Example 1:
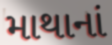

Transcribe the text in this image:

માથાનાં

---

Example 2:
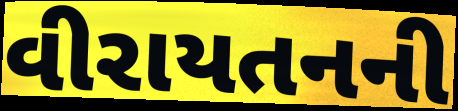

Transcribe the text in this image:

વીરાયતનની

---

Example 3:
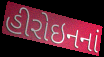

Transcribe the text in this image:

હીરોઇનનાં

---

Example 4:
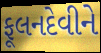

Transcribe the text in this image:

ફૂલનદેવીને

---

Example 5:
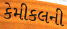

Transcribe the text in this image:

કેમીકલની